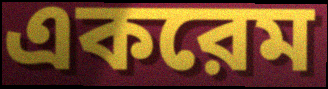
একরেম